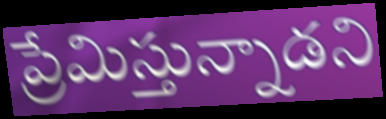
ప్రేమిస్తున్నాడని